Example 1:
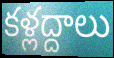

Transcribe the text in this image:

కళ్లద్దాలు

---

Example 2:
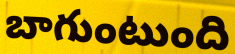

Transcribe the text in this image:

బాగుంటుంది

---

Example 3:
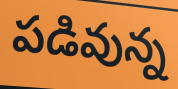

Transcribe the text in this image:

పడివున్న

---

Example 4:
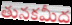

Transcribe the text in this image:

తునకమీద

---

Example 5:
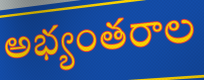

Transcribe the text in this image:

అభ్యంతరాల